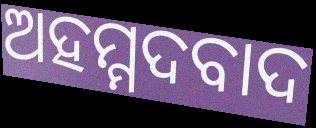
ଅହମ୍ମଦବାଦ